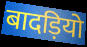
बादड़ियो